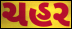
ચહર